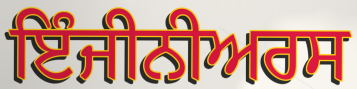
ਇੰਜੀਨੀਅਰਸ